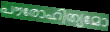
പൗരോഹിത്യമോ